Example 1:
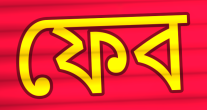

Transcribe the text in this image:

ফেব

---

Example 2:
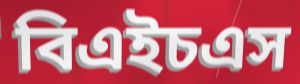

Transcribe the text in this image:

বিএইচএস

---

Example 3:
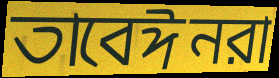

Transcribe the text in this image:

তাবেঈনরা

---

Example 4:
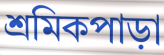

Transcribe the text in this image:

শ্রমিকপাড়া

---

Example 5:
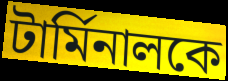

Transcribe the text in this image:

টার্মিনালকে